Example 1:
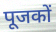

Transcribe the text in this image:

पूजकों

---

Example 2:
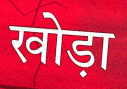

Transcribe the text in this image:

खोड़ा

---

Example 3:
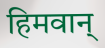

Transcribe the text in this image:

हिमवान्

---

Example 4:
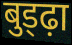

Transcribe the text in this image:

बुड्ढ़ा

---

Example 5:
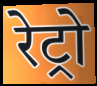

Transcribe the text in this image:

रेट्रो